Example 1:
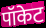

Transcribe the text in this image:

पॉकेट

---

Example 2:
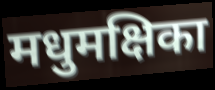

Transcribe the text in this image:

मधुमक्षिका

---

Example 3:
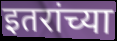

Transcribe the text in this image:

इतरांच्या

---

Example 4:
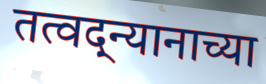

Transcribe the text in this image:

तत्वद्न्यानाच्या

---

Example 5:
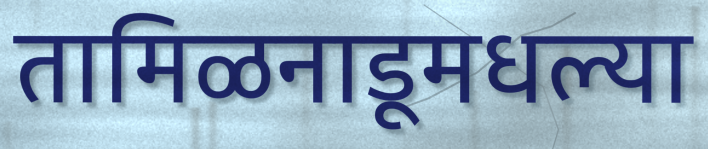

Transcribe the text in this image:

तामिळनाडूमधल्या